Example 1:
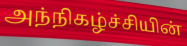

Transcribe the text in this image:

அந்நிகழ்ச்சியின்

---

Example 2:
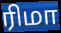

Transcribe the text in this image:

ரிமா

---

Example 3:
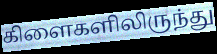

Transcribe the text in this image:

கிளைகளிலிருந்து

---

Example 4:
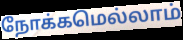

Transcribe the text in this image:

நோக்கமெல்லாம்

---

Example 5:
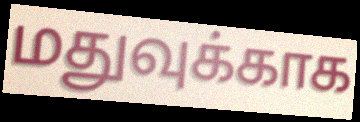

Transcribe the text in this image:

மதுவுக்காக